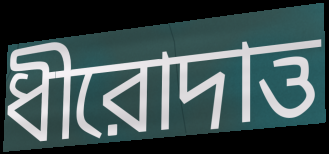
ধীরোদাত্ত